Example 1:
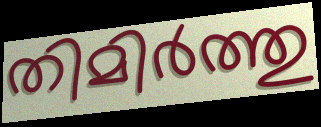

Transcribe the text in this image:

തിമിർത്തു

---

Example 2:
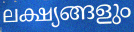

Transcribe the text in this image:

ലക്ഷ്യങ്ങളും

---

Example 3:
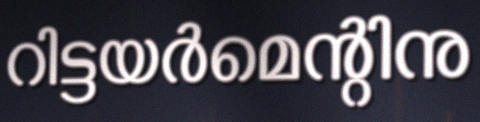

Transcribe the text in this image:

റിട്ടയർമെന്റിനു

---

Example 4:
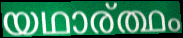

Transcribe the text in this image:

യഥാര്ത്ഥം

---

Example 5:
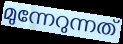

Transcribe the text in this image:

മുന്നേറുന്നത്